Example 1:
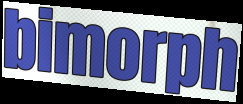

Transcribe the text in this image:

bimorph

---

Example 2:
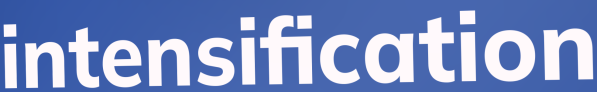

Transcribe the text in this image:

intensification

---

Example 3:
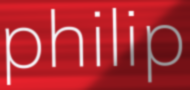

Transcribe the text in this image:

philip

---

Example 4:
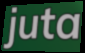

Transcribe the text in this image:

juta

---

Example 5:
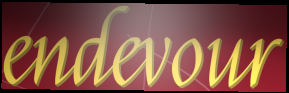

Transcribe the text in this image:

endevour